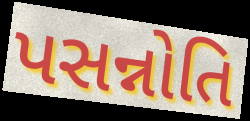
પસન્નોતિ